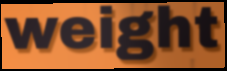
weight